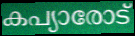
കപ്യാരോട്